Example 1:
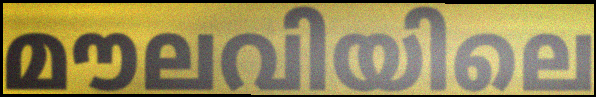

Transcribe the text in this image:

മൗലവിയിലെ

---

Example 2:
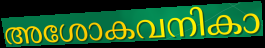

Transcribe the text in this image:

അശോകവനികാ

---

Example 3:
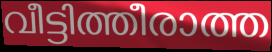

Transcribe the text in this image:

വീട്ടിത്തീരാത്ത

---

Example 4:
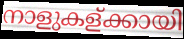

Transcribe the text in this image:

നാളുകള്ക്കായി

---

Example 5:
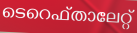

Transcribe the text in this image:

ടെറെഫ്താലേറ്റ്